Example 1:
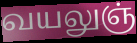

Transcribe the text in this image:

வயலுஞ்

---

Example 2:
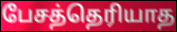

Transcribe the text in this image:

பேசத்தெரியாத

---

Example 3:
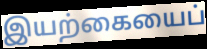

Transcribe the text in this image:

இயற்கையைப்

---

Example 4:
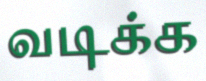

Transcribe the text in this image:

வடிக்க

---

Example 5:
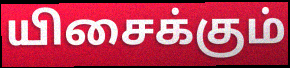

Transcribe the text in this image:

யிசைக்கும்